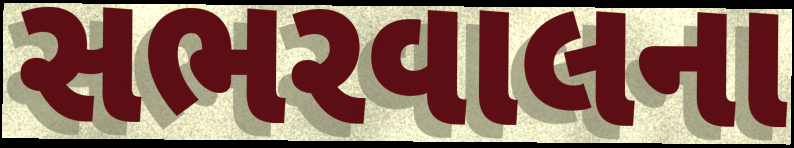
સભરવાલના